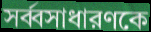
সর্ব্বসাধারণকে